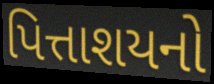
પિત્તાશયનો